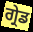
ਗ੍ਰੇਡ